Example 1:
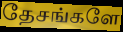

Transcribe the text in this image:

தேசங்களே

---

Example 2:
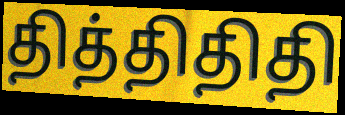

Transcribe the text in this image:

தித்திதிதி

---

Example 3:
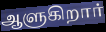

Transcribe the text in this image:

ஆளுகிறார்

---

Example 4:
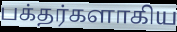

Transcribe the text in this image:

பக்தர்களாகிய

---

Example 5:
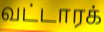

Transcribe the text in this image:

வட்டாரக்